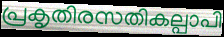
പ്രകൃതിരസതികല്പാപി